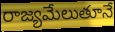
రాజ్యమేలుతూనే